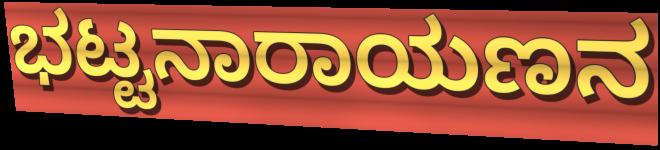
ಭಟ್ಟನಾರಾಯಣನ